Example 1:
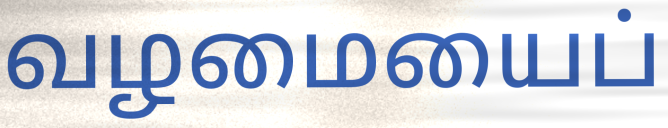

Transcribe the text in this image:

வழமையைப்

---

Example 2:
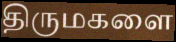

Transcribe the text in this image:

திருமகளை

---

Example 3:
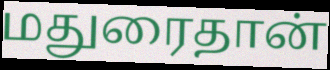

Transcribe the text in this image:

மதுரைதான்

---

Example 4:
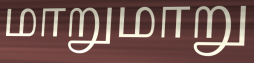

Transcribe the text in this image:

மாறுமாறு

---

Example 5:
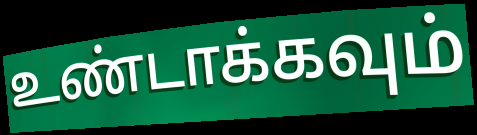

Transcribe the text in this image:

உண்டாக்கவும்